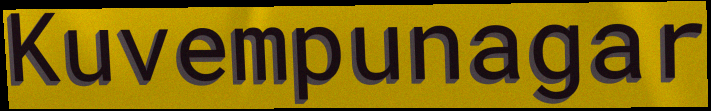
Kuvempunagar